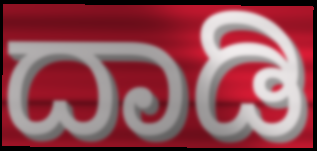
ದಾಡಿ